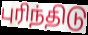
புரிந்திடு